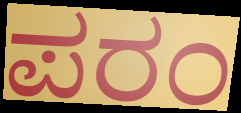
ಪರಂ